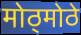
मोठ्मोठे